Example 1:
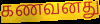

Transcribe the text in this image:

கணவனது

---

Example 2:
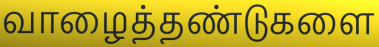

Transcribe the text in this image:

வாழைத்தண்டுகளை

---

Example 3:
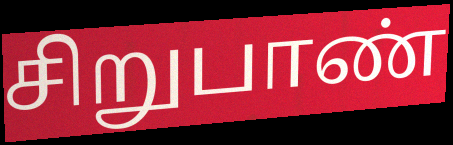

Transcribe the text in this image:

சிறுபாண்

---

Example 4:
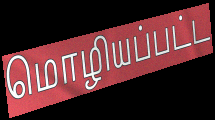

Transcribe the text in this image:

மொழியப்பட்ட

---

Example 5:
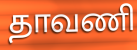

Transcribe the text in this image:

தாவணி